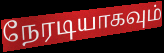
நேரடியாகவும்